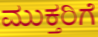
ಮುಕ್ತರಿಗೆ